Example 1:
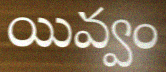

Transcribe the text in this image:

యివ్వం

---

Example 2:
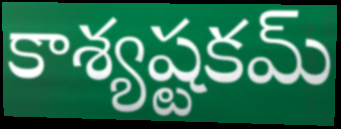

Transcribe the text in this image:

కాశ్యష్టకమ్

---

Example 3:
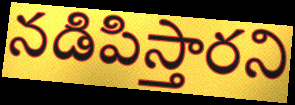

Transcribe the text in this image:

నడిపిస్తారని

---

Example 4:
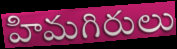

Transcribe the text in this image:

హిమగిరులు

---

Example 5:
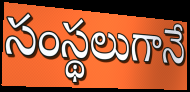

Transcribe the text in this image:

సంస్థలుగానే